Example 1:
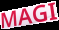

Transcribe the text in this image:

MAGI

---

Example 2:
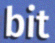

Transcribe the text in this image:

bit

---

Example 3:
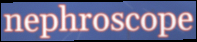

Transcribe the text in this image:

nephroscope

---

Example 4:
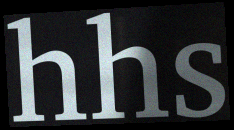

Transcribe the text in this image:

hhs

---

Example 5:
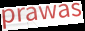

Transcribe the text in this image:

prawas